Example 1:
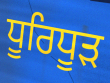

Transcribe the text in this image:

ਧੂਰਿਧੂੜ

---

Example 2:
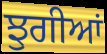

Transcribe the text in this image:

ਝੁਗੀਆਂ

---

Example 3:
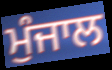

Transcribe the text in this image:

ਮੁੰਜਾਲ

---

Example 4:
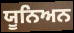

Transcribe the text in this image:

ਯੂਨਿਅਨ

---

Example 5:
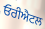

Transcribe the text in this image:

ਓਰੀਐਟਲ